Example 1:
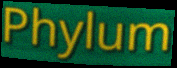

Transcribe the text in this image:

Phylum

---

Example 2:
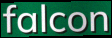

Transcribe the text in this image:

falcon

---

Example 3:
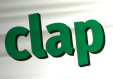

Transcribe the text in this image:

clap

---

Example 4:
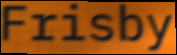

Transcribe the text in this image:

Frisby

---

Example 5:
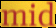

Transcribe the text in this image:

mid